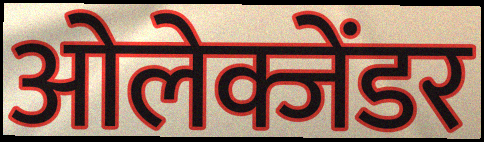
ओलेक्जेंडर